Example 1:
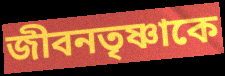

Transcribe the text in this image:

জীবনতৃষ্ণাকে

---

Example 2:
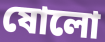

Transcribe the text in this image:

ষোলো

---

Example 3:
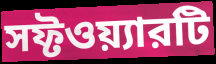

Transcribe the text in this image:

সফ্টওয়্যারটি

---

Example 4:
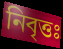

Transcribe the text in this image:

নিবৃত্তঃ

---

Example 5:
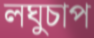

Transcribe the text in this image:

লঘুচাপ